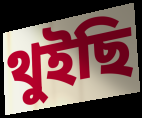
থুইছি